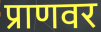
प्राणवर